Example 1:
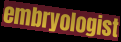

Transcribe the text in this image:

embryologist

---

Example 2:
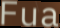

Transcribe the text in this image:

Fua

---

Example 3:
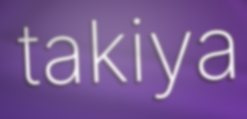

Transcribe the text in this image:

takiya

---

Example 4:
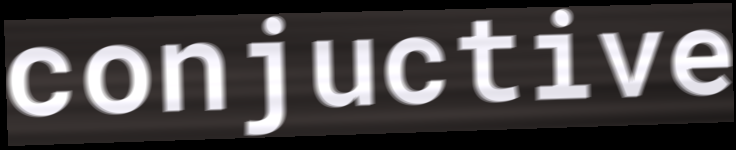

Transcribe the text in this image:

conjuctive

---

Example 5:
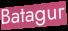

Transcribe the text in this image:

Batagur